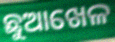
ଛୁଆଖେଳ